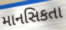
માનસિકતા